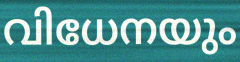
വിധേനയും